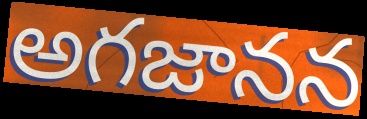
అగజానన